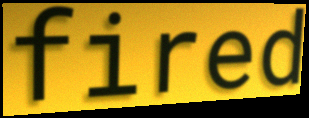
fired